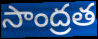
సాంద్రత